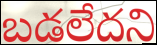
బడలేదని